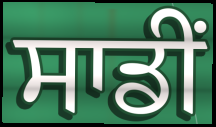
ਸਾਡੀਂ